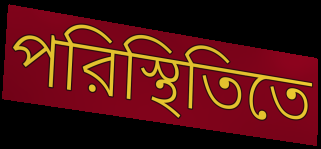
পরিস্থিতিতে